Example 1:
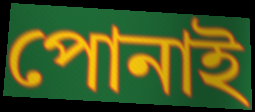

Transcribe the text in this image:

পোনাই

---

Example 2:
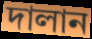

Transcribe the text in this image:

দালান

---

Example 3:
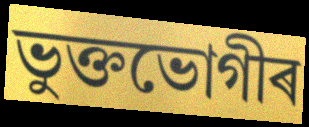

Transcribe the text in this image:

ভুক্তভোগীৰ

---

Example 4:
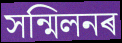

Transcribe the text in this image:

সন্মিলনৰ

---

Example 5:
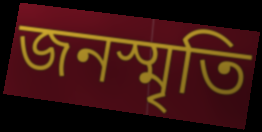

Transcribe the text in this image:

জনস্মৃতি